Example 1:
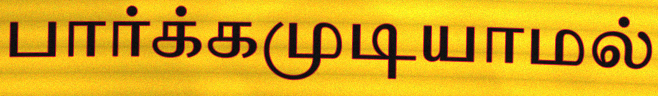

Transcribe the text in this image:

பார்க்கமுடியாமல்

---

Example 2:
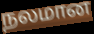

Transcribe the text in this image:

நலமான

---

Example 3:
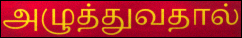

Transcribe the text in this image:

அழுத்துவதால்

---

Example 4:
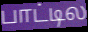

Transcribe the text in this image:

பாட்டில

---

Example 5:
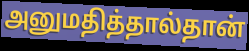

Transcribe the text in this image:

அனுமதித்தால்தான்